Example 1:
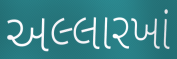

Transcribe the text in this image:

અલ્લારખાં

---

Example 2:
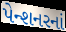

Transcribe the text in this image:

પેન્શનરનાં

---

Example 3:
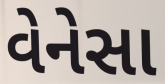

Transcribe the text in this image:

વેનેસા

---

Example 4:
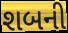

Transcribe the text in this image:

શબની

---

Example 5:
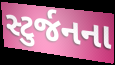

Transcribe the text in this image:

સ્ટુર્જનના